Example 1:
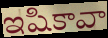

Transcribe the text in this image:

ఇషికావా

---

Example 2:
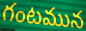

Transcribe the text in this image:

గంటమున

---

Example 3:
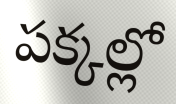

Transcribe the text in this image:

పక్కల్లో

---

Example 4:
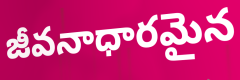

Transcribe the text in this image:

జీవనాధారమైన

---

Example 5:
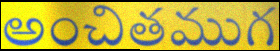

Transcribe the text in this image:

అంచితముగ